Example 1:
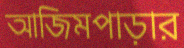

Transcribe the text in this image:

আজিমপাড়ার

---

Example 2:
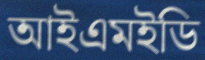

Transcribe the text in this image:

আইএমইডি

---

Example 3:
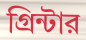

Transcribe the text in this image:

গ্রিন্টার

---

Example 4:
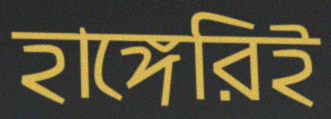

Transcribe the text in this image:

হাঙ্গেরিই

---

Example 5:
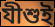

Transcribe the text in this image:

যীশুই